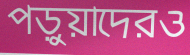
পড়ুয়াদেরও